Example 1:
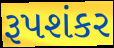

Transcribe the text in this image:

રૂપશંકર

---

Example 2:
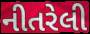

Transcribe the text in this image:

નીતરેલી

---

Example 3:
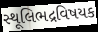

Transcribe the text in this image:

સ્થૂલિભદ્રવિષયક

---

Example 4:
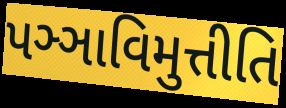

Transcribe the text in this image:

પઞ્ઞાવિમુત્તીતિ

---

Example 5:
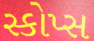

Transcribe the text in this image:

સ્કોપ્સ